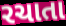
રચાતા